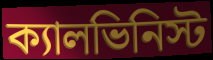
ক্যালভিনিস্ট